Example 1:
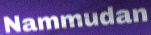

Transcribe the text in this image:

Nammudan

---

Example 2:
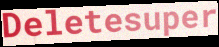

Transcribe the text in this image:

Deletesuper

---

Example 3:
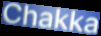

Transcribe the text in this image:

Chakka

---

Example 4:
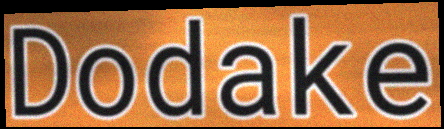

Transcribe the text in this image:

Dodake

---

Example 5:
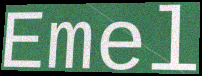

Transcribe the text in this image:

Emel